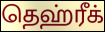
தெஹ்ரீக்